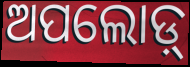
ଅପଲୋଡ଼୍